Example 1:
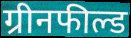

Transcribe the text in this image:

ग्रीनफील्ड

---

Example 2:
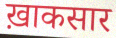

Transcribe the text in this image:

ख़ाकसार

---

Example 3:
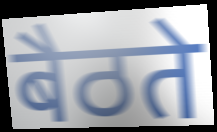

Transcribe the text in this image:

बैठते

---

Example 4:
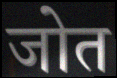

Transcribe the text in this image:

जोत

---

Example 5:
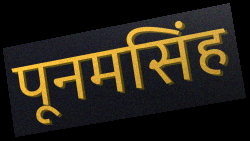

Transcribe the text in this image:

पूनमसिंह